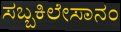
ಸಬ್ಬಕಿಲೇಸಾನಂ